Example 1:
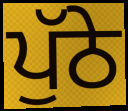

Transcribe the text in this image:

ਪੁੱਠੇ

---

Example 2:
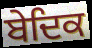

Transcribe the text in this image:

ਬੇਦਿਕ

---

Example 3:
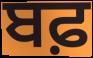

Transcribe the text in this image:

ਬਫ਼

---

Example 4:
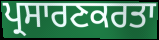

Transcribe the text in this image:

ਪ੍ਰਸਾਰਣਕਰਤਾ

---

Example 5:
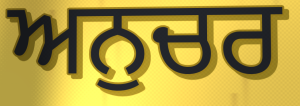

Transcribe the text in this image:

ਅਨੁਚਰ